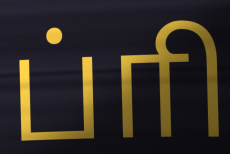
ப்ரி